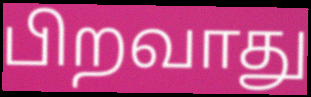
பிறவாது